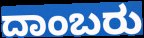
ದಾಂಬರು